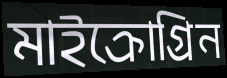
মাইক্রোগ্রিন